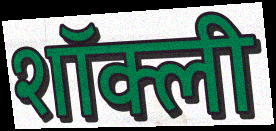
शॉक्ली